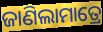
ଜାଣିଲାମାତ୍ରେ